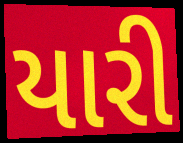
યારી